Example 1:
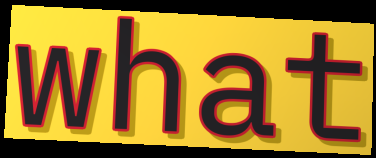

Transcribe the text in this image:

what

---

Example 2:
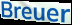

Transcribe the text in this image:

Breuer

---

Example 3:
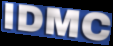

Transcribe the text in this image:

IDMC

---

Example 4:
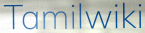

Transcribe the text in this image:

Tamilwiki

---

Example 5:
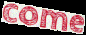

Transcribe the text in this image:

come